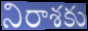
నిరాశకు